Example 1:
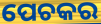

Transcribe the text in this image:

ପେଚକର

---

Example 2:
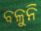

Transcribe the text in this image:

ବଳୁନି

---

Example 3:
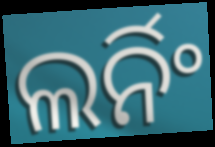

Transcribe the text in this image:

ଲର୍ନିଂ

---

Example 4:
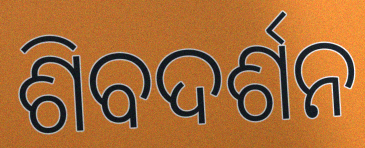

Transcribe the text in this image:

ଶିବଦର୍ଶନ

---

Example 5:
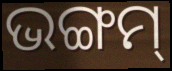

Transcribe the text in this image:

ଭଙ୍ଗମ୍